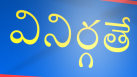
వినిర్గతే